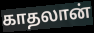
காதலான்